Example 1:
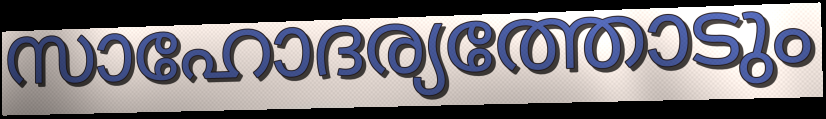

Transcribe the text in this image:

സാഹോദര്യത്തോടും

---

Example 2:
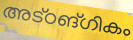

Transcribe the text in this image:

അട്ഠങ്ഗികം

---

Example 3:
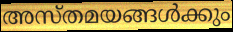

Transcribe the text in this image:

അസ്തമയങ്ങൾക്കും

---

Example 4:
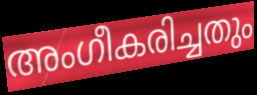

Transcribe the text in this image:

അംഗീകരിച്ചതും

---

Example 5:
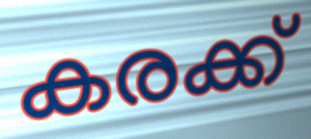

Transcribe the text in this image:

കരക്ക്